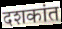
दशकांत